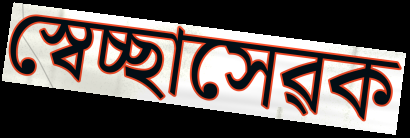
স্বেচ্ছাসেৱক